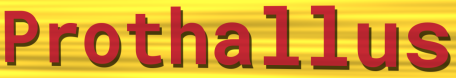
Prothallus